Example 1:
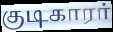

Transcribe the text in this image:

குடிகாரர்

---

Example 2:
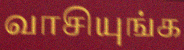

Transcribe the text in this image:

வாசியுங்க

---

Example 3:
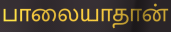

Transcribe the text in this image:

பாலையாதான்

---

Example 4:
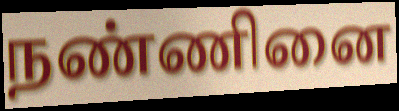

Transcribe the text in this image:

நண்ணினை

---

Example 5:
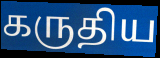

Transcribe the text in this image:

கருதிய